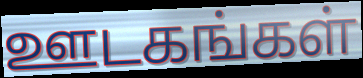
ஊடகங்கள்